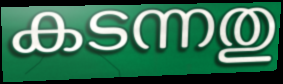
കടന്നതു